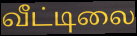
வீட்டிலை